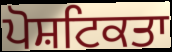
ਪੋਸ਼ਟਿਕਤਾ